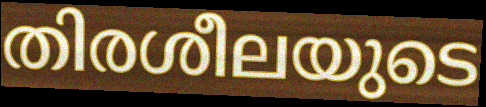
തിരശീലയുടെ